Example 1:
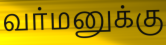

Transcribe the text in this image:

வர்மனுக்கு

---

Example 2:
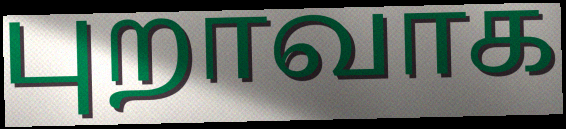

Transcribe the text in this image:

புறாவாக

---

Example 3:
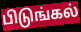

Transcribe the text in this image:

பிடுங்கல்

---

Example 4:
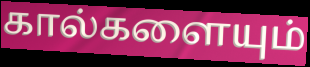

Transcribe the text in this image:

கால்களையும்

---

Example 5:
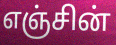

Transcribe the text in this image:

எஞ்சின்